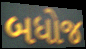
બધોજ